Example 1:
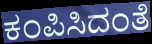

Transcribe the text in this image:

ಕಂಪಿಸಿದಂತೆ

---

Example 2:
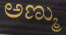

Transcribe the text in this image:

ಅಣ್ಮು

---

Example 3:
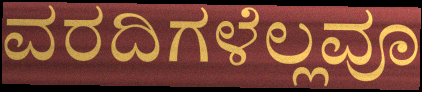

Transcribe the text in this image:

ವರದಿಗಳೆಲ್ಲವೂ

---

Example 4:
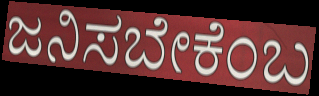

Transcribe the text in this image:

ಜನಿಸಬೇಕೆಂಬ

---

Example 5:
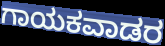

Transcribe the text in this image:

ಗಾಯಕವಾಡರ